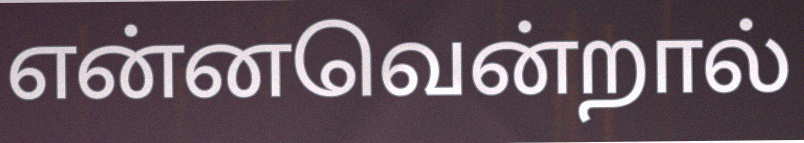
என்னவென்றால்